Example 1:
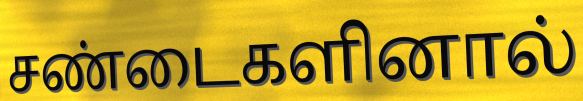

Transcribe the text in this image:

சண்டைகளினால்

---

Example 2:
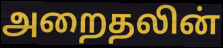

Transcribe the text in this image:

அறைதலின்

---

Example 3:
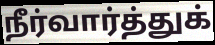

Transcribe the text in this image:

நீர்வார்த்துக்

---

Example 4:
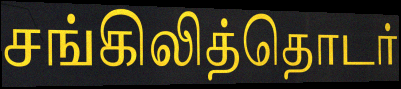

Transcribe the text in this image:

சங்கிலித்தொடர்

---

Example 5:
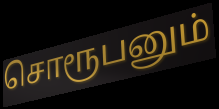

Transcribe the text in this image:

சொரூபனும்